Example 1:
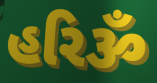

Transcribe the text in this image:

હરિૐ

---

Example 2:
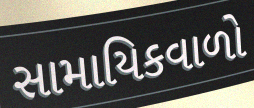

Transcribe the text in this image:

સામાયિકવાળો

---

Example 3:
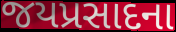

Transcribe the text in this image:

જયપ્રસાદના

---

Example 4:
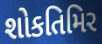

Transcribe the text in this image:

શોકતિમિર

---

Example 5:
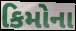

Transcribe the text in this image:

કિમોના